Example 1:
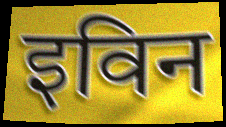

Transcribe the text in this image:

इविन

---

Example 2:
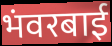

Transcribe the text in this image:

भंवरबाई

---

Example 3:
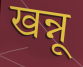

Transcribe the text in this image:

खन्नू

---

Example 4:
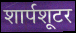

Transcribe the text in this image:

शार्पशूटर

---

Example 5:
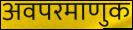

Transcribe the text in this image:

अवपरमाणुक